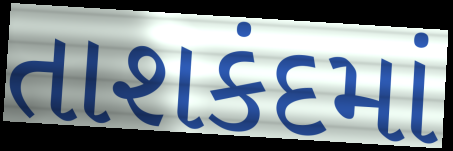
તાશકંદમાં